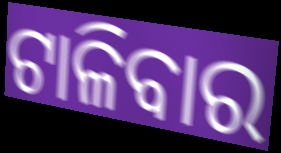
ଟାଳିବାର